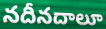
నదీనదాలూ